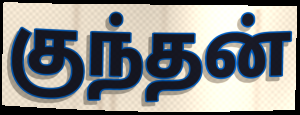
குந்தன்